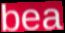
bea